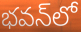
భవన్‌లో